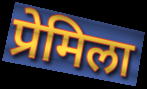
प्रेमिला